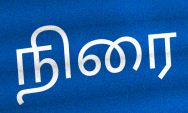
நிரை